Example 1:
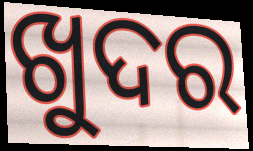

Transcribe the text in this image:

ଖୁଦର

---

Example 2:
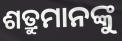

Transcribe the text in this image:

ଶତ୍ରୁମାନଙ୍କୁ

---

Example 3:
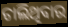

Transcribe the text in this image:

ଚାଲିଥିବାର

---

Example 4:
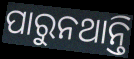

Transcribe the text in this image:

ପାରୁନଥାନ୍ତି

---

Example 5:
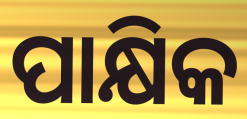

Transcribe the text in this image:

ପାକ୍ଷିକ